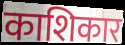
काशिकार